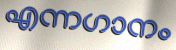
എന്നഗാനം